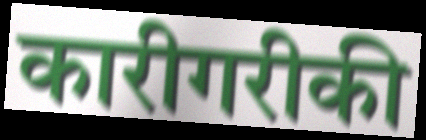
कारीगरीकी